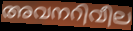
അവനറിവീല